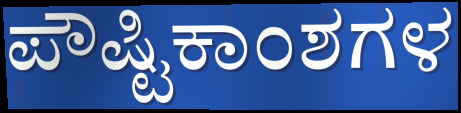
ಪೌಷ್ಟಿಕಾಂಶಗಳ